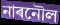
নাৰনৌল